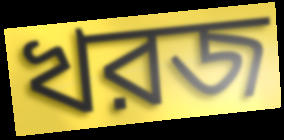
খরজ